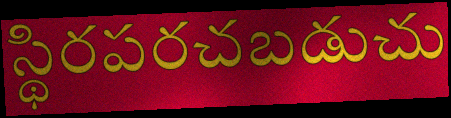
స్థిరపరచబడుచు